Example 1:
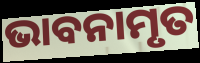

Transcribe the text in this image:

ଭାବନାମୃତ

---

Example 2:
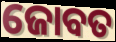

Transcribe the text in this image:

ଜୋବତ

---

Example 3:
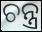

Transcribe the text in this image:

ଚନ୍ତ୍ର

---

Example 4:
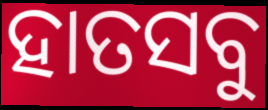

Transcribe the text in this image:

ହାତସବୁ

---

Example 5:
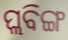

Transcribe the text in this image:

ପ୍ଲବିଙ୍ଗ